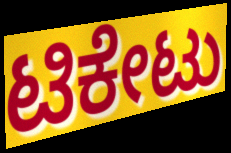
ಟಿಕೇಟು